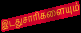
இடதுசாரிகளையும்